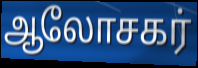
ஆலோசகர்